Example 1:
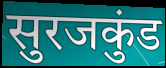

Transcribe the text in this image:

सुरजकुंड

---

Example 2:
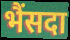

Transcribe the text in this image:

भैंसदा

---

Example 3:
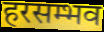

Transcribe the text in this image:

हरसम्भव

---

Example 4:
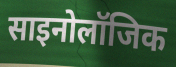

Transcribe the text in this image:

साइनोलॉजिक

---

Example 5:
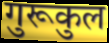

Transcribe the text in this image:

गुरूकुल